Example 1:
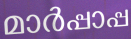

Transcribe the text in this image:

മാർപ്പാപ്പ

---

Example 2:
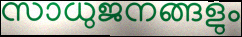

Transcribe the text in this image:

സാധുജനങ്ങളും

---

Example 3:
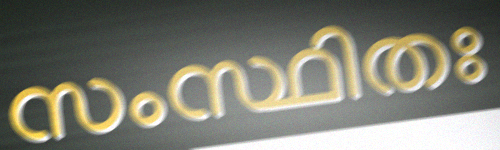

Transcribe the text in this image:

സംസ്ഥിതഃ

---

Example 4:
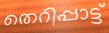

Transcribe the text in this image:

തെറിപ്പാട്ട്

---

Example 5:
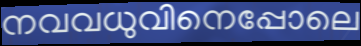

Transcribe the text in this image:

നവവധുവിനെപ്പോലെ